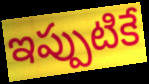
ఇప్పుటికే